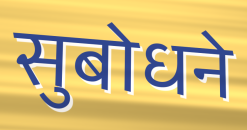
सुबोधने